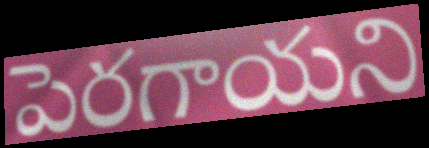
పెరగాయని